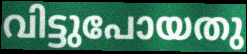
വിട്ടുപോയതു